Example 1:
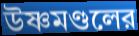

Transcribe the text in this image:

উষ্ণমণ্ডলের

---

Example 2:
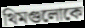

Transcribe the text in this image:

থিমগুলোকে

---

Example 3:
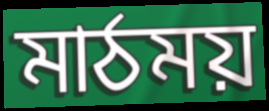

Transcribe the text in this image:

মাঠময়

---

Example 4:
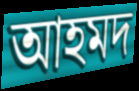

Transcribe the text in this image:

আহমদ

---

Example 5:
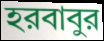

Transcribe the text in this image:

হরবাবুর